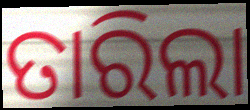
ତାରିଲା